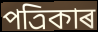
পত্ৰিকাৰ